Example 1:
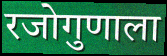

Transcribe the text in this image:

रजोगुणाला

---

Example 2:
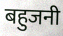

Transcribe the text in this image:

बहुजनी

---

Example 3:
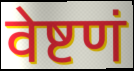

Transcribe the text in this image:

वेष्टणं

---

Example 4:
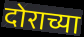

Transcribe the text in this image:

दोराच्या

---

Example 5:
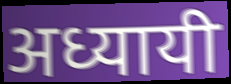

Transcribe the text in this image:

अध्यायी